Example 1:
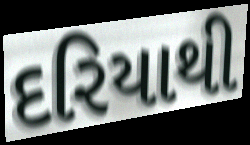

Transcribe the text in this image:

દરિયાથી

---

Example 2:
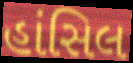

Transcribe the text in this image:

હાંસિલ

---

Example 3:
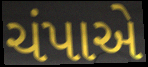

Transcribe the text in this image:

ચંપાએ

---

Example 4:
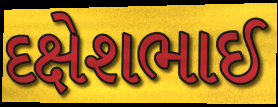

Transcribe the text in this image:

દક્ષેશભાઈ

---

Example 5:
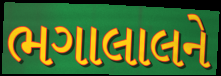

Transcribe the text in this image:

ભગાલાલને